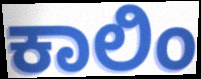
ಕಾಲಿಂ